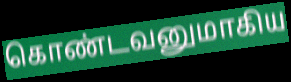
கொண்டவனுமாகிய